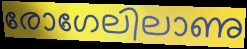
രോഗേലിലാണു